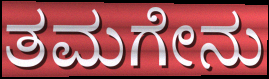
ತಮಗೇನು